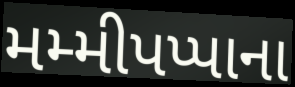
મમ્મીપપ્પાના